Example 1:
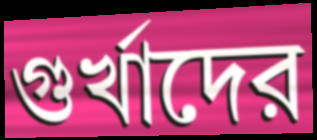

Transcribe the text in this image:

গুর্খাদের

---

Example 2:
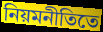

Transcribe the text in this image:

নিয়মনীতিতে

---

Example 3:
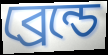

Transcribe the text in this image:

ব্রেন্ডে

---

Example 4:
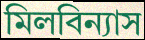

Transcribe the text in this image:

মিলবিন্যাস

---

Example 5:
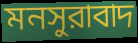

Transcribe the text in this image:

মনসুরাবাদ